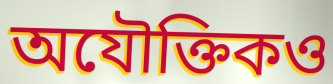
অযৌক্তিকও